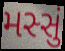
મસ્સું